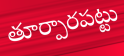
తూర్పారపట్టు